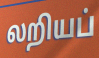
லறியப்